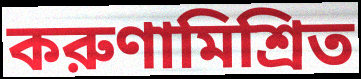
করুণামিশ্রিত